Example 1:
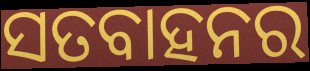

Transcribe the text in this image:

ସତବାହନର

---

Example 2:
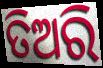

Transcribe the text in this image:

ତିଅରି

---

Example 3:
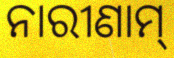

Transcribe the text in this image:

ନାରୀଣାମ୍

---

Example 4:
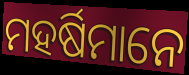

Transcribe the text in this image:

ମହର୍ଷିମାନେ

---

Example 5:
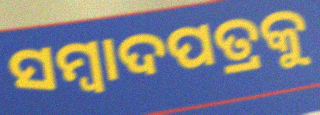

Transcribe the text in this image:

ସମ୍ବାଦପତ୍ରକୁ